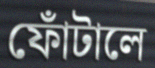
ফোঁটালে